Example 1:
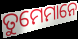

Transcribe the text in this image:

ତୁମେମାନେ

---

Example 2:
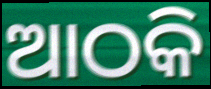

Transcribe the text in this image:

ଆଠକି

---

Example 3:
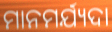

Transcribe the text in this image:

ମାନମର୍ଯ୍ୟଦା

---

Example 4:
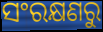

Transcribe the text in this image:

ସଂରକ୍ଷଣରୁ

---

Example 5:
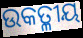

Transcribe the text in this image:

ଉକତ୍ଳୀୟ